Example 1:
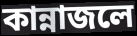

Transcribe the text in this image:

কান্নাজলে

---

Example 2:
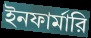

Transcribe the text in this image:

ইনফার্মারি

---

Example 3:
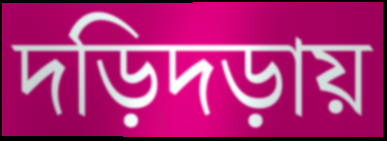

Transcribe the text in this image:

দড়িদড়ায়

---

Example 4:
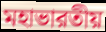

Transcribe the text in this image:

মহাভারতীয়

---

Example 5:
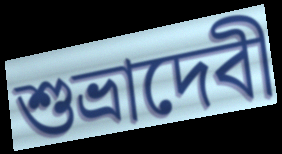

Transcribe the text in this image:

শুভ্রাদেবী